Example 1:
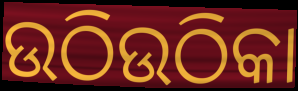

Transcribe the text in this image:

ଉଠିଉଠିକା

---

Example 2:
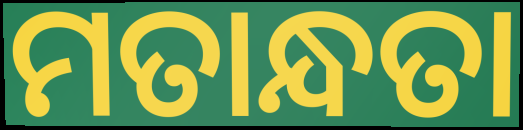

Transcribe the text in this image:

ମତାନ୍ଧତା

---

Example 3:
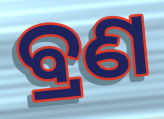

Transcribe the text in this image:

ବ୍ରଣ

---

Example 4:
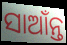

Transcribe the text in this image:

ସାଆଁନ୍ତ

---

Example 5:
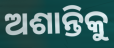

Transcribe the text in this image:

ଅଶାନ୍ତିକୁ